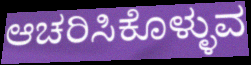
ಆಚರಿಸಿಕೊಳ್ಳುವ